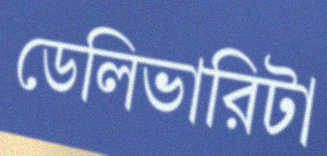
ডেলিভারিটা